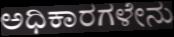
ಅಧಿಕಾರಗಳೇನು